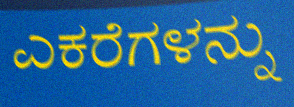
ಎಕರೆಗಳನ್ನು